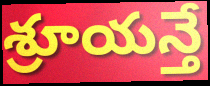
శ్రూయన్తే